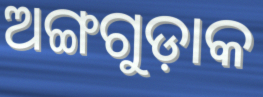
ଅଙ୍ଗଗୁଡ଼ାକ